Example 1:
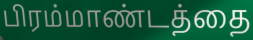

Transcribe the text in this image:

பிரம்மாண்டத்தை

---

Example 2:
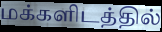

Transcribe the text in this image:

மக்களிடத்தில்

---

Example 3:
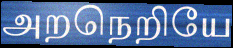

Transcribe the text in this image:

அறநெறியே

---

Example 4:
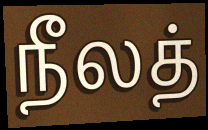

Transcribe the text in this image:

நீலத்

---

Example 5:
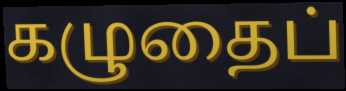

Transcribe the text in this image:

கழுதைப்